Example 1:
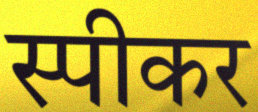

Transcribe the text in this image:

स्पीकर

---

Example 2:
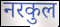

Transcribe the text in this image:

नरकुल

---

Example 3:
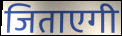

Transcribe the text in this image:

जिताएगी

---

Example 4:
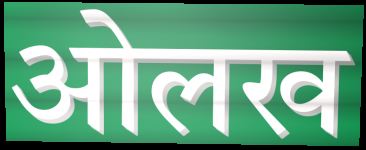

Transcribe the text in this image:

ओलख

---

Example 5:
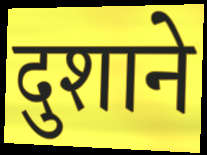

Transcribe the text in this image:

दुशाने